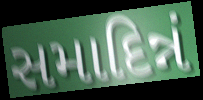
સમાદિન્નં